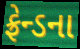
ફ્રેન્ડના